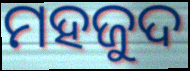
ମହଜୁଦ